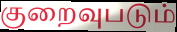
குறைவுபடும்